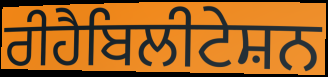
ਰੀਹੈਬਿਲੀਟੇਸ਼ਨ